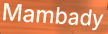
Mambady